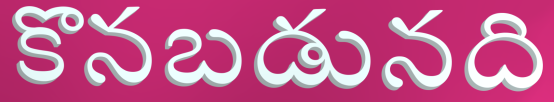
కొనబడునది